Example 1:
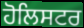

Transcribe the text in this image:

ਹੋਲਿਸਟਰ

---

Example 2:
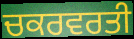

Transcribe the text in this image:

ਚਕਰਵਰਤੀ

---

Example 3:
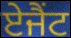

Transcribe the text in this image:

ਏਜੈਂਟ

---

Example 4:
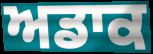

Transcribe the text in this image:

ਅਡਾਕ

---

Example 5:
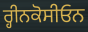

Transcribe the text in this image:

ਰ੍ਹੀਨਕੋਸੀਓਨ